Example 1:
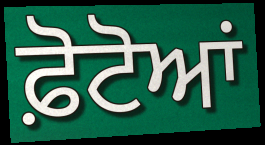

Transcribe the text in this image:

ਫ਼ੋਟੋਆਂ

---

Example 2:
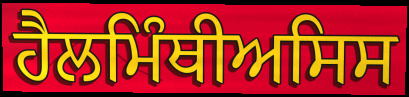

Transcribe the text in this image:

ਹੈਲਮਿੰਥੀਅਸਿਸ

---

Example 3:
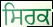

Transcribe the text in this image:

ਸਿਰਕ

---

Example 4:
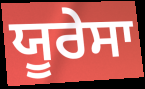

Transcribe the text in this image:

ਯੂਰੇਸਾ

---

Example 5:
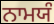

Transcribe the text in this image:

ਨਾਮਯੰ